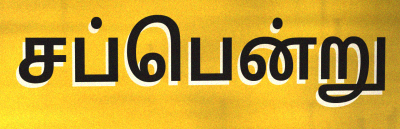
சப்பென்று